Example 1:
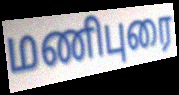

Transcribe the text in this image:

மணிபுரை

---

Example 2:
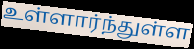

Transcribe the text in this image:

உள்ளார்ந்துள்ள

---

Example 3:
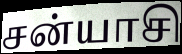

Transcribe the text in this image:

சன்யாசி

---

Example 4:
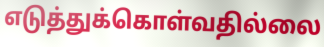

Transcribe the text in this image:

எடுத்துக்கொள்வதில்லை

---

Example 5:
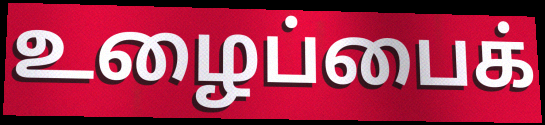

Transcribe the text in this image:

உழைப்பைக்